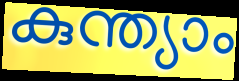
കുന്ത്യാം